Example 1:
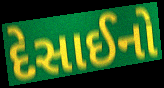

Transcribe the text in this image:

દેસાઈનો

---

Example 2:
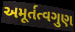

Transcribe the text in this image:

અમૂર્તત્વગુણ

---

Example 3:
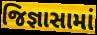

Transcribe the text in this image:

જિજ્ઞાસામાં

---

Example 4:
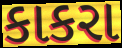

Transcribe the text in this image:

કાકરા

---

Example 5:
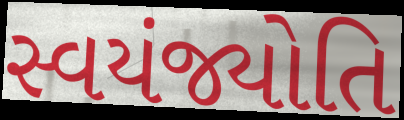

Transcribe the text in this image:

સ્વયંજ્યોતિ